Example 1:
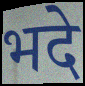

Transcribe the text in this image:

भदे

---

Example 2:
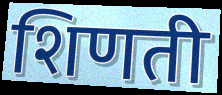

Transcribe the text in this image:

शिणती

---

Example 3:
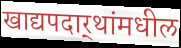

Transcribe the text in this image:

खाद्यपदार्थांमधील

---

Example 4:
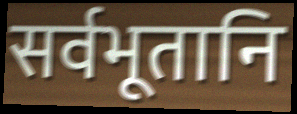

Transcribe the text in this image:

सर्वभूतानि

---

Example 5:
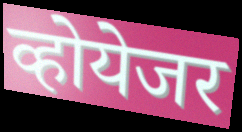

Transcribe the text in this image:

व्होयेजर